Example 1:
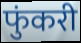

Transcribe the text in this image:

फुंकरी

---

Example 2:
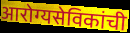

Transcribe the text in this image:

आरोग्यसेविकांची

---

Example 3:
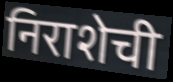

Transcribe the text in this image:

निराशेची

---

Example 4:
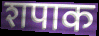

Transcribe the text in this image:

शपाक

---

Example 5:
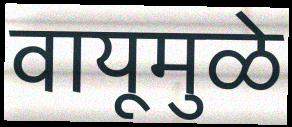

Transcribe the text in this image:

वायूमुळे